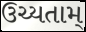
ઉચ્યતામ્